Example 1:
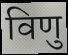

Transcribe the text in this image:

विणु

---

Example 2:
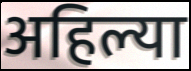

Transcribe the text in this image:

अहिल्या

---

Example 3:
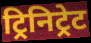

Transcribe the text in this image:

ट्रिनिट्रेट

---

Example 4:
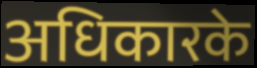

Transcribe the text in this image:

अधिकारके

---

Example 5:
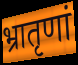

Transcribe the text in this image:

भ्रातृणां